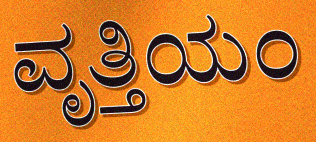
ವೃತ್ತಿಯಂ